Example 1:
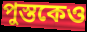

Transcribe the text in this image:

পুস্তকেও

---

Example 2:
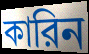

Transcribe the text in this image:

কারিন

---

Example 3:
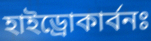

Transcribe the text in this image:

হাইড্রোকার্বনঃ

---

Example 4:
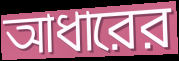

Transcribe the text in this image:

আধারের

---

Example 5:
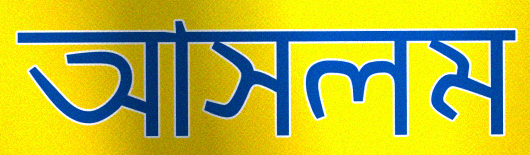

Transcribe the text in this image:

আসলম